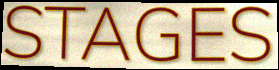
STAGES